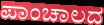
ಪಾಂಚಾಲದ